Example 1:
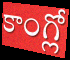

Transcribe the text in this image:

కాంగ్లో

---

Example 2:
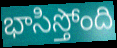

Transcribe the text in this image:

భాసిస్తోంది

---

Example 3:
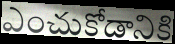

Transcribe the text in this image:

ఎంచుకోడానికి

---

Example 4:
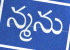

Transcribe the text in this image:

న్మను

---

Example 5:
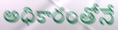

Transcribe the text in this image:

అధికారంతోనే